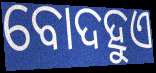
ବୋଦହୁଏ